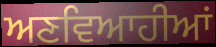
ਅਣਵਿਆਹੀਆਂ